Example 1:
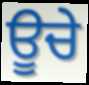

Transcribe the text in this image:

ਊਚੇ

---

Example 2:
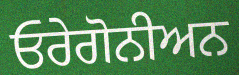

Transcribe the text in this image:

ਓਰੇਗੋਨੀਅਨ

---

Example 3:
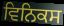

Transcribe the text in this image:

ਵਿਨਿਕਸ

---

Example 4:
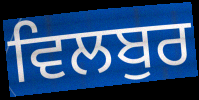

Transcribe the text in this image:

ਵਿਲਬੁਰ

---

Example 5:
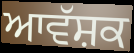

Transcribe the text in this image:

ਆਵੱਸ਼ਕ